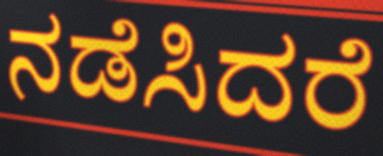
ನಡೆಸಿದರೆ